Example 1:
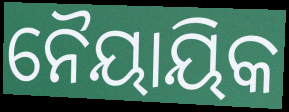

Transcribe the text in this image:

ନୈୟାୟିକ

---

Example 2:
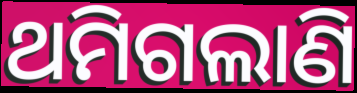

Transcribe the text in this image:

ଥମିଗଲାଣି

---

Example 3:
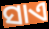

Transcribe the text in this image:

ସାଏ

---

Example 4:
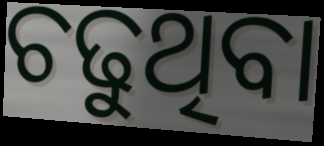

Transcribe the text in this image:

ଚଢୁଥିବା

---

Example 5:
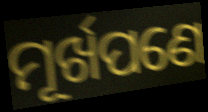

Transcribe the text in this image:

ମୂର୍ଖପଣେ